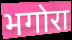
भगोरा